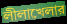
লীলাখেলার